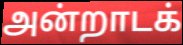
அன்றாடக்